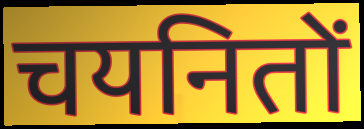
चयनितों